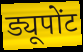
ड्यूपोंट